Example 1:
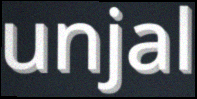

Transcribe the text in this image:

unjal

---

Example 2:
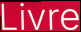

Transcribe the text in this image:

Livre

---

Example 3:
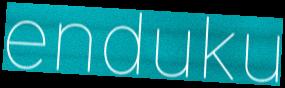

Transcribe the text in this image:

enduku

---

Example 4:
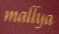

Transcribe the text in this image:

mallya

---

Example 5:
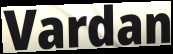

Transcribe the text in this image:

Vardan